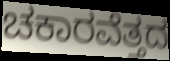
ಚಕಾರವೆತ್ತದ